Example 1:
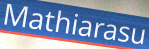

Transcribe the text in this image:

Mathiarasu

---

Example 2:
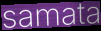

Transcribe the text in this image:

samata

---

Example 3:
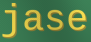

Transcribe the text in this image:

jase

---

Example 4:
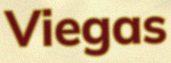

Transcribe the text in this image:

Viegas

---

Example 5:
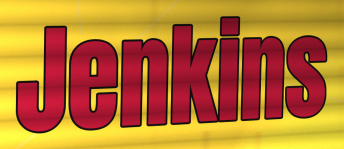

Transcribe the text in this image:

Jenkins